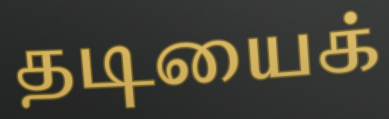
தடியைக்